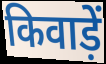
किवाड़ें